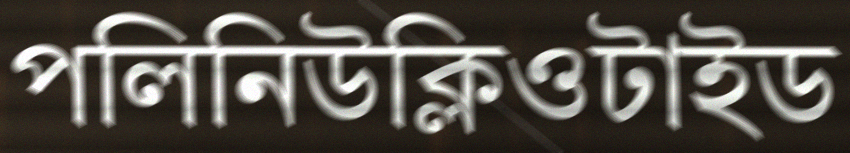
পলিনিউক্লিওটাইড